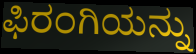
ಫಿರಂಗಿಯನ್ನು